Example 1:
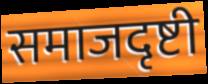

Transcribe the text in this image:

समाजदृष्टी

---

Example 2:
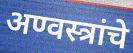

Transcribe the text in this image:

अण्वस्त्रांचे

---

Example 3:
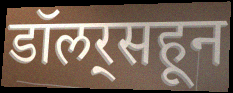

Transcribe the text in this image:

डॉलर्सहून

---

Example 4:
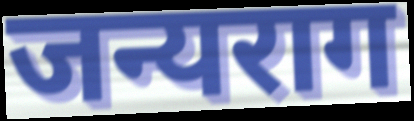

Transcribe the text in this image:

जन्यराग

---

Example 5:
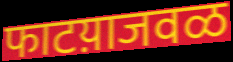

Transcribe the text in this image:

फाटय़ाजवळ